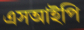
এসআইপি